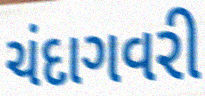
ચંદાગવરી